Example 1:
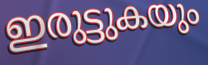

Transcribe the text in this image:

ഇരുട്ടുകയും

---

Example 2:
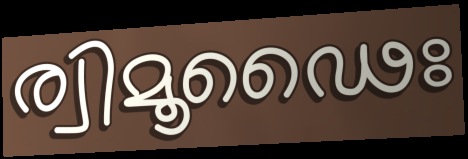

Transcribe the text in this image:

ര്വിമൂഢൈഃ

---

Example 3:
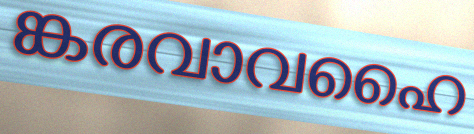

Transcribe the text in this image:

ങ്കരവാവഹൈ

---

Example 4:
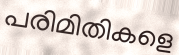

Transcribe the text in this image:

പരിമിതികളെ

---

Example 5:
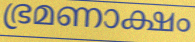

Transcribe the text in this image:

ഭ്രമണാക്ഷം